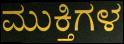
ಮುಕ್ತಿಗಳ